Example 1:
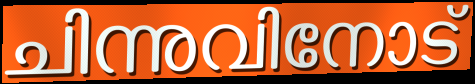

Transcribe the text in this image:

ചിന്നുവിനോട്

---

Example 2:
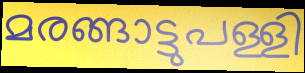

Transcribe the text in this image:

മരങ്ങാട്ടുപള്ളി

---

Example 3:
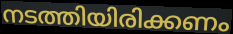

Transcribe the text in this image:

നടത്തിയിരിക്കണം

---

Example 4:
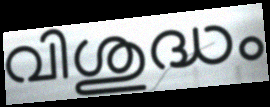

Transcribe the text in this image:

വിശുദ്ധം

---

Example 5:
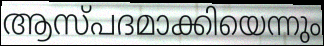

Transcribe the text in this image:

ആസ്പദമാക്കിയെന്നും